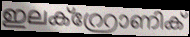
ഇലക്റ്റ്രോണിക്